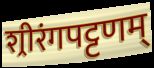
श्रीरंगपट्टणम्